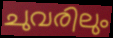
ചുവരിലും